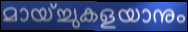
മായ്ച്ചുകളയാനും